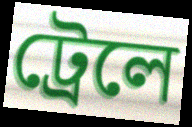
ট্রেলে